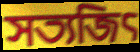
সত্যজিৎ